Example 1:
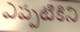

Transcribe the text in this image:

ఎప్పటికిని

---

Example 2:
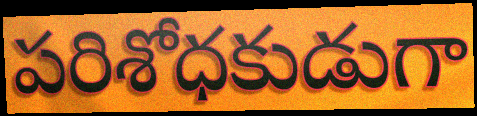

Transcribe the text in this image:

పరిశోధకుడుగా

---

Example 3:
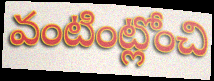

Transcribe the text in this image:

వంటింట్లోంచి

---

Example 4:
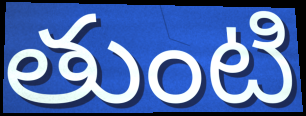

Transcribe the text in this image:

తుంటి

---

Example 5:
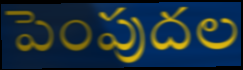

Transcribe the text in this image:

పెంపుదల